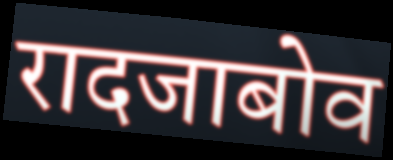
रादजाबोव